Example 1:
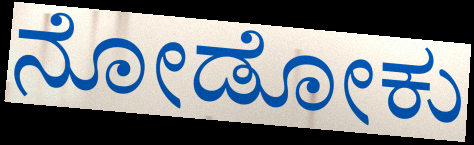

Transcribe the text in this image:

ನೋಡೋಕು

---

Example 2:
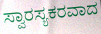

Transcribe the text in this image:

ಸ್ವಾರಸ್ಯಕರವಾದ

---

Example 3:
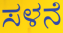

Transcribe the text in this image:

ಸಳನೆ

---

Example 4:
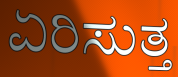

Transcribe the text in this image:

ಏರಿಸುತ್ತ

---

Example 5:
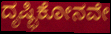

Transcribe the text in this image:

ದೃಷ್ಟಿಕೋನವೇ